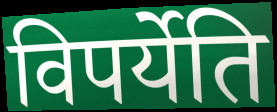
विपर्येति